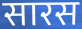
सारस